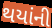
થયાંની